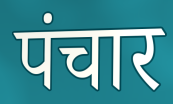
पंचार